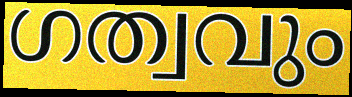
ഗത്വവും